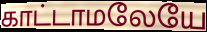
காட்டாமலேயே